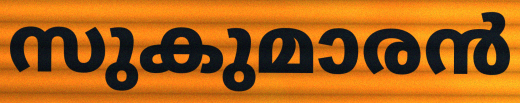
സുകുമാരൻ